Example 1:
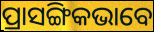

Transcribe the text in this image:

ପ୍ରାସଙ୍ଗିକଭାବେ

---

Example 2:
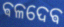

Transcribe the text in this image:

ଵଳଦେଵ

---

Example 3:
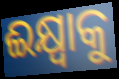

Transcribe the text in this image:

ଈକ୍ଷ୍ୱାକୁ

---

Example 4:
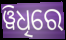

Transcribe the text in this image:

ୱିଧିରେ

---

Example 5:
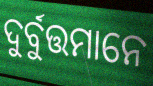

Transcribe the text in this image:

ଦୁର୍ବୁତ୍ତମାନେ